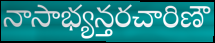
నాసాభ్యన్తరచారిణౌ